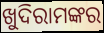
ଖୁଦିରାମଙ୍କର